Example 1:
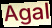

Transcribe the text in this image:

Agal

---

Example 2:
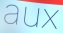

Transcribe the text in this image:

aux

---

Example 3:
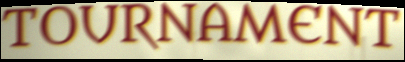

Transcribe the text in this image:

TOURNAMENT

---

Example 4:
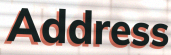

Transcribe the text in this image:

Address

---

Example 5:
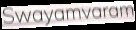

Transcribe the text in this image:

Swayamvaram